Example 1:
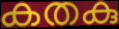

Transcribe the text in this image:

കതകു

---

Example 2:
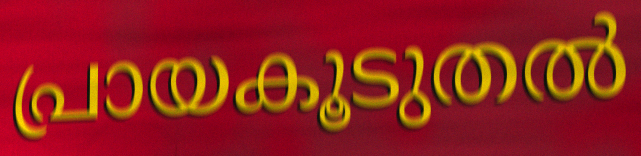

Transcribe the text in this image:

പ്രായകൂടുതൽ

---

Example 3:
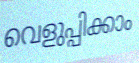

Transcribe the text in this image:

വെളുപ്പിക്കാം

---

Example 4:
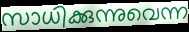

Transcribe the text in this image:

സാധിക്കുന്നുവെന്ന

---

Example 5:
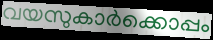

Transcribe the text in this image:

വയസുകാർക്കൊപ്പം